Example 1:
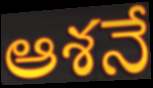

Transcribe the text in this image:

ఆశనే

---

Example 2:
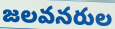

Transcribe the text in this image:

జలవనరుల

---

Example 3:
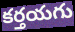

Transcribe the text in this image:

కర్తయగు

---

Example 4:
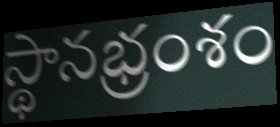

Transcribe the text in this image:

స్థానభ్రంశం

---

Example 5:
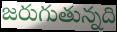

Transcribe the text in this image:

జరుగుతున్నది